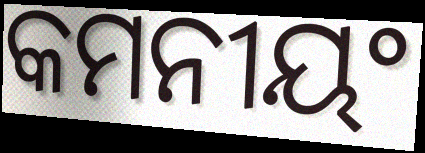
କମନୀୟଂ